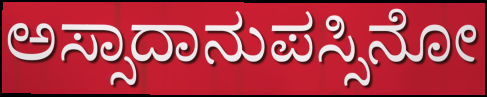
ಅಸ್ಸಾದಾನುಪಸ್ಸಿನೋ